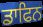
ਡਾਫਿਨ